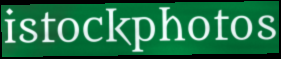
istockphotos